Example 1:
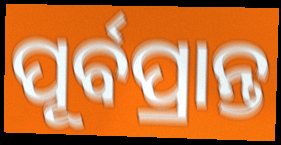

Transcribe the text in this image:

ପୂର୍ବପ୍ରାନ୍ତ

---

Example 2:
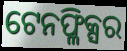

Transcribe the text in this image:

ଟେନଫ୍ଳିକ୍ସର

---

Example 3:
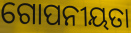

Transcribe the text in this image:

ଗୋପନୀୟତା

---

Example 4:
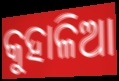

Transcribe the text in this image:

କୁହାଳିଆ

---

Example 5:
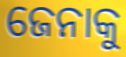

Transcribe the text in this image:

ଜେନାକୁ